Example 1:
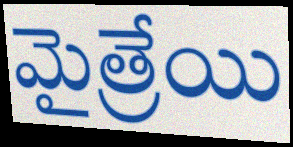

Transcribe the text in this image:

మైత్రేయి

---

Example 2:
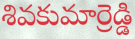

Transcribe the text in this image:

శివకుమార్రెడ్డి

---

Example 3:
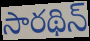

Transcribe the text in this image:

సారథిన్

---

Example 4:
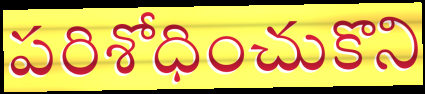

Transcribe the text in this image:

పరిశోధించుకొని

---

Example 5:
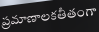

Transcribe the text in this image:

ప్రమాణాలకతీతంగా